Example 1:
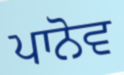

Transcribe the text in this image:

ਪਾਨੋਵ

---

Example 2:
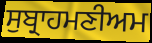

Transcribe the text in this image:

ਸੁਬ੍ਰਾਹਮਣੀਅਮ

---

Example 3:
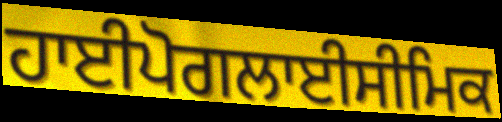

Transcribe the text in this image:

ਹਾਈਪੋਗਲਾਈਸੀਮਿਕ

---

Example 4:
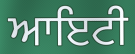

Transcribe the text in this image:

ਆਇਟੀ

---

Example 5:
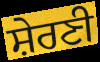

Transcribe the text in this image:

ਸ਼ੇਰਣੀ